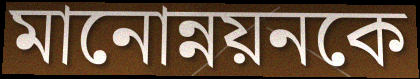
মানোন্নয়নকে